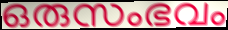
ഒരുസംഭവം